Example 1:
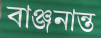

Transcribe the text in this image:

বাঞ্জনান্ত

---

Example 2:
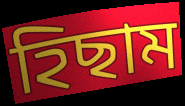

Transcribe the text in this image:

হিছাম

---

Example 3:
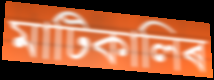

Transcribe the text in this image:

মাটিকালিৰ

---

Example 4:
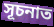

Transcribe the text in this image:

সূচনাত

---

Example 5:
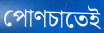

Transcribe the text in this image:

পোণচাতেই